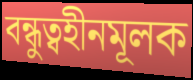
বন্ধুত্বহীনমূলক